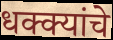
धक्क्यांचे